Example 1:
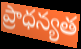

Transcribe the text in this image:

ప్రాధన్యత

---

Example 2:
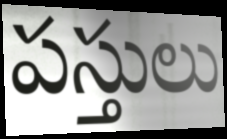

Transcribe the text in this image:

పస్తులు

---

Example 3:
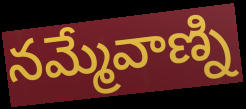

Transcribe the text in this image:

నమ్మేవాణ్ని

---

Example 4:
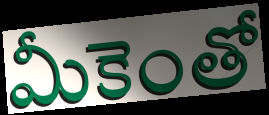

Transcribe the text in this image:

మీకెంతో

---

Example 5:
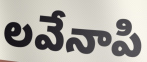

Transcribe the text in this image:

లవేనాపి